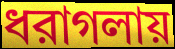
ধরাগলায়